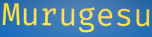
Murugesu